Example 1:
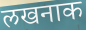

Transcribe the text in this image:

लखनाक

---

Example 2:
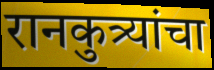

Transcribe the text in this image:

रानकुत्र्यांचा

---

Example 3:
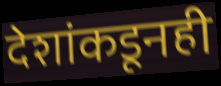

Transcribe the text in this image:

देशांकडूनही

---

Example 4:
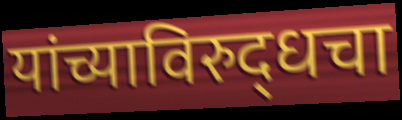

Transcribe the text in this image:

यांच्याविरुद्धचा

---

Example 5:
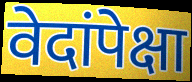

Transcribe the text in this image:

वेदांपेक्षा